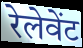
रेलेवेंट